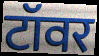
टॉवर